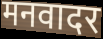
मनवादर